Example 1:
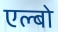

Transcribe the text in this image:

एल्बो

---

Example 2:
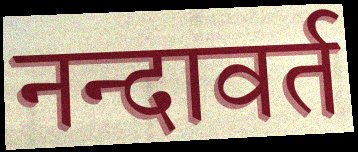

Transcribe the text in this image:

नन्दावर्त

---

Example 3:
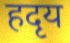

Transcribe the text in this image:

हदृय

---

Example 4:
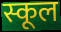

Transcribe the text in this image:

स्‍कूल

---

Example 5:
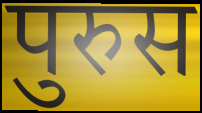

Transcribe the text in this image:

पुरुस